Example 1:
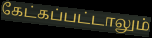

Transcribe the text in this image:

கேட்கப்பட்டாலும்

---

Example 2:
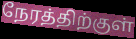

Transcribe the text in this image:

நேரத்திற்குள்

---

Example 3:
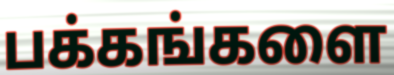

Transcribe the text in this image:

பக்கங்களை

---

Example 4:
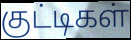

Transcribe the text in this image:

குட்டிகள்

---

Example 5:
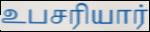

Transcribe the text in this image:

உபசரியார்